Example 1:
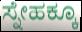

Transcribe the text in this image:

ಸ್ನೇಹಕ್ಕೂ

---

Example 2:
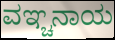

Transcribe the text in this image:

ವಞ್ಚನಾಯ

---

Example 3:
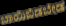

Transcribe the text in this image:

ಬಾಯಿಬಿಡಬೇಡ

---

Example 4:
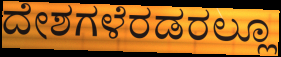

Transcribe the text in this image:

ದೇಶಗಳೆರಡರಲ್ಲೂ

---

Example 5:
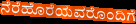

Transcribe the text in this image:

ನೆರೆಹೊರೆಯವರೊಂದಿಗೆ